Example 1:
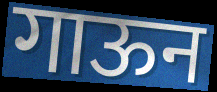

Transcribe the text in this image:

गाऊन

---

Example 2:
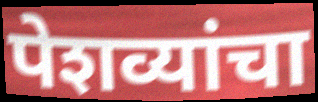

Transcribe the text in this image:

पेशव्यांचा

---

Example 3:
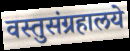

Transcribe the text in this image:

वस्तुसंग्रहालये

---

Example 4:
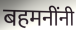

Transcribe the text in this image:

बहमनींनी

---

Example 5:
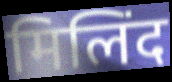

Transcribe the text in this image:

मिलिंद